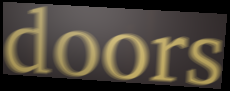
doors